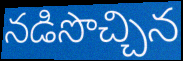
నడిసొచ్చిన